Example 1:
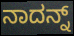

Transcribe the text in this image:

ನಾದನ್ನ್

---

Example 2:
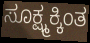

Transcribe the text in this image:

ಸೂಕ್ಷ್ಮಕ್ಕಿಂತ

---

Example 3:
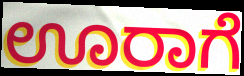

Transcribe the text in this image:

ಊರಾಗೆ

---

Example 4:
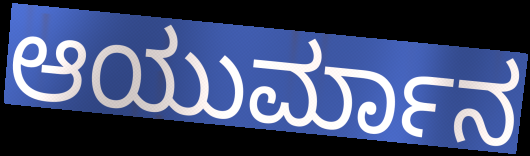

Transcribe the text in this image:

ಆಯುರ್ಮಾನ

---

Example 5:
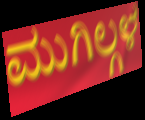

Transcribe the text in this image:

ಮುಗಿಲ್ಗಳ